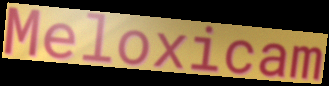
Meloxicam